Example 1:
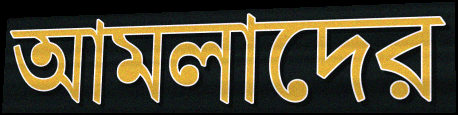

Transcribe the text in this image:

আমলাদের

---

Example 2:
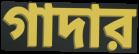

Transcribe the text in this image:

গাদার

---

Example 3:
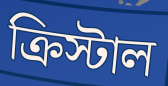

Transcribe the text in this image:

ক্রিস্টাল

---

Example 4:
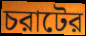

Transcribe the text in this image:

চরাটের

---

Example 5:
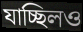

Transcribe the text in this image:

যাচ্ছিলও